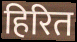
हिरित